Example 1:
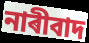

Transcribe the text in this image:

নাৰীবাদ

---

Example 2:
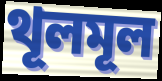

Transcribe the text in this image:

থূলমূল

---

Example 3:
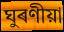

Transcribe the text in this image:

ঘুৰণীয়া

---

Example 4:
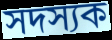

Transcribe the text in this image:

সদস্যক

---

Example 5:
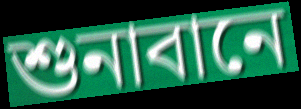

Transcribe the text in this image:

শুনাবানে